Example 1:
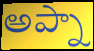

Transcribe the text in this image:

అప్నా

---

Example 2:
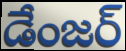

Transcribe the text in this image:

డేంజర్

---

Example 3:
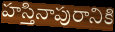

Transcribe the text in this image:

హస్తినాపురానికి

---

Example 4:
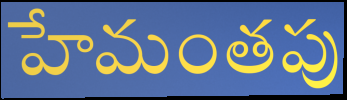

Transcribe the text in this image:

హేమంతపు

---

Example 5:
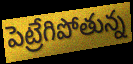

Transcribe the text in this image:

పెట్రేగిపోతున్న